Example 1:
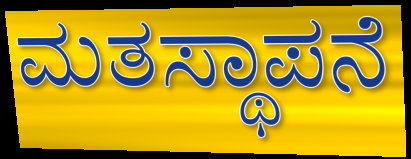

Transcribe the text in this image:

ಮತಸ್ಥಾಪನೆ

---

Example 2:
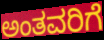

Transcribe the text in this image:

ಅಂತವರಿಗೆ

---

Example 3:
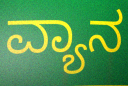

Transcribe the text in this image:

ವ್ಯಾನ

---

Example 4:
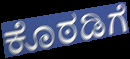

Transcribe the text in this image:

ಕೊಠಡಿಗೆ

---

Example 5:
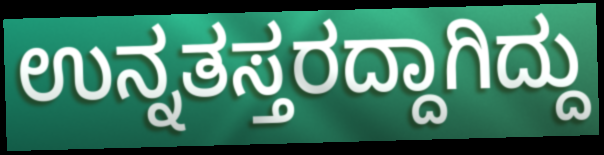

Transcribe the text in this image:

ಉನ್ನತಸ್ತರದ್ದಾಗಿದ್ದು